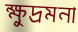
ক্ষুদ্রমনা